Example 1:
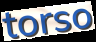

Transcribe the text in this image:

torso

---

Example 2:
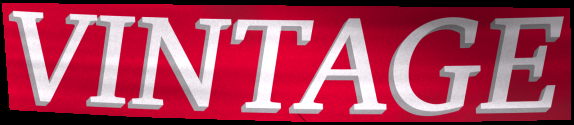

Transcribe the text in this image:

VINTAGE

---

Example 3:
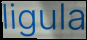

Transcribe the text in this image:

ligula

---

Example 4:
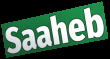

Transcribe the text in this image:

Saaheb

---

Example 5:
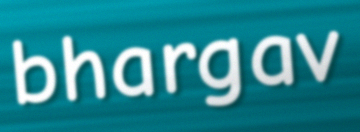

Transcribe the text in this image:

bhargav